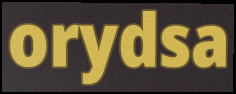
orydsa